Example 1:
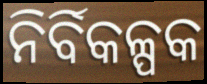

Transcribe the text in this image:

ନିର୍ବିକଳ୍ପକ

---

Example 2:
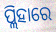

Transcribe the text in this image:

ପ୍ଲିହାରେ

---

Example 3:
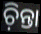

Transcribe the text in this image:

ଚ଼ିନ୍ତା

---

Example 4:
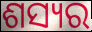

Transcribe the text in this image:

ଶସ୍ଯର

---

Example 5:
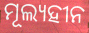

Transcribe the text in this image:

ମୂଲ୍ଯହୀନ